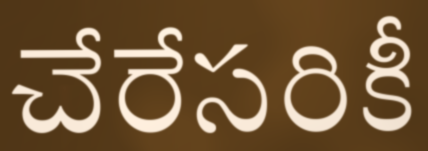
చేరేసరికీ